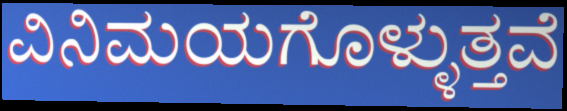
ವಿನಿಮಯಗೊಳ್ಳುತ್ತವೆ